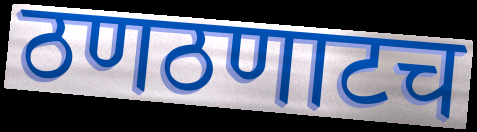
ठणठणाटच